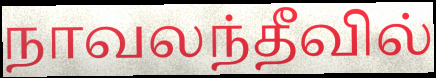
நாவலந்தீவில்